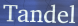
Tandel